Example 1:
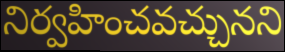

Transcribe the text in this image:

నిర్వహించవచ్చునని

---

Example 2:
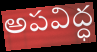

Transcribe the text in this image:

అపవిద్ధ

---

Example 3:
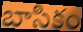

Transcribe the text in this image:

బాసికం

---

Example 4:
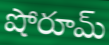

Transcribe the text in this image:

షోరూమ్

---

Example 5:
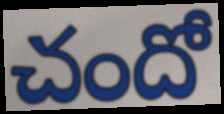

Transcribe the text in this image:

చందో